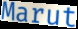
Marut